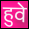
हुवे